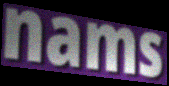
nams